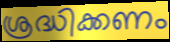
ശ്രദ്ധിക്കണം